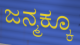
ಜನ್ಮಕ್ಕೂ